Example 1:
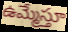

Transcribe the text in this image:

ఉమ్మేస్తూ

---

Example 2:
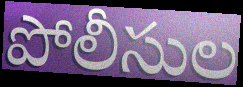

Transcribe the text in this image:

పోలీసుల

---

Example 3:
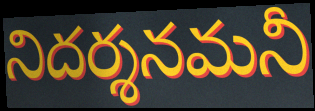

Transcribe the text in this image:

నిదర్శనమనీ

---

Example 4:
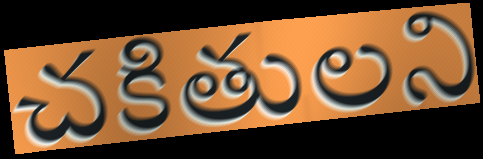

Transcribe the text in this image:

చకితులని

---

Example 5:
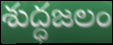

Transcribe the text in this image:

శుద్ధజలం